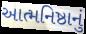
આત્મનિષ્ઠાનું